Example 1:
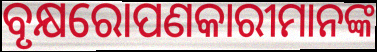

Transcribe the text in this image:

ବୃକ୍ଷରୋପଣକାରୀମାନଙ୍କ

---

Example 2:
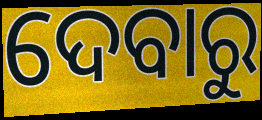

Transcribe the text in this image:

ଦେବାରୁ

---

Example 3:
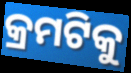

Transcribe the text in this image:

କ୍ରମଟିକୁ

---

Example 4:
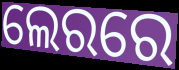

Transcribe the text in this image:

ଲେରରେ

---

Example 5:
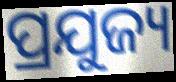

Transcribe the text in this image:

ପ୍ରଯୁଜ୍ୟ